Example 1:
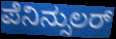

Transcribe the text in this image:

ಪೆನಿನ್ಸುಲರ್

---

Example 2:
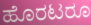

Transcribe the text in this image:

ಹೊರಟರೂ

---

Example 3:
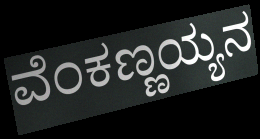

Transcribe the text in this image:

ವೆಂಕಣ್ಣಯ್ಯನ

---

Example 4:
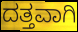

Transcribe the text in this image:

ದತ್ತವಾಗಿ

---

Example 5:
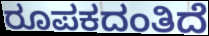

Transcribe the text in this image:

ರೂಪಕದಂತಿದೆ